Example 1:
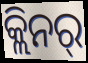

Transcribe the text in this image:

କ୍ଲିନର୍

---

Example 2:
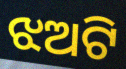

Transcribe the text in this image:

ଝଅଟି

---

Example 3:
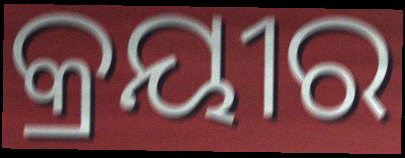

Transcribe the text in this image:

କ୍ରୟୀର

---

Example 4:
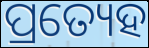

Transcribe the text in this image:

ପ୍ରତ୍ୟେହ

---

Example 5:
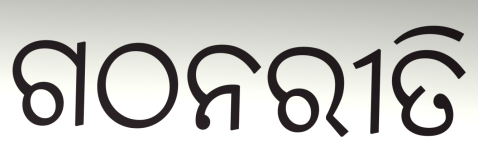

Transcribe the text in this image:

ଗଠନରୀତି